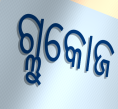
ଗ୍ଲୁକୋଜ